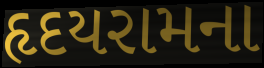
હૃદયરામના